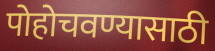
पोहोचवण्यासाठी